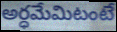
అర్ధమేమిటంటే